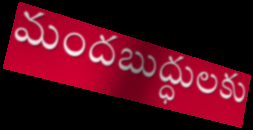
మందబుద్ధులకు